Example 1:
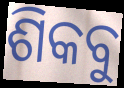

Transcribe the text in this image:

ଶିକବୁ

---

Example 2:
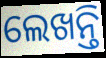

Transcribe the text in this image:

ଲେଖନ୍ତି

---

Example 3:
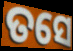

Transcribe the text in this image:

ତସେ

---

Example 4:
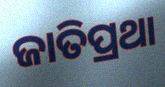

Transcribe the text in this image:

ଜାତିପ୍ରଥା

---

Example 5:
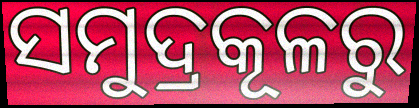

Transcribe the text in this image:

ସମୁଦ୍ରକୂଳରୁ